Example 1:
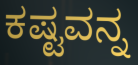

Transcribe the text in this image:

ಕಷ್ಟವನ್ನ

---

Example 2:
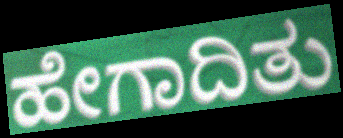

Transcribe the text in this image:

ಹೇಗಾದಿತು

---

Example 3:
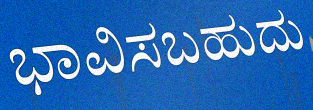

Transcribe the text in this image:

ಭಾವಿಸಬಹುದು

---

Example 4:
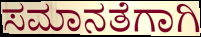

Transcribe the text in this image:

ಸಮಾನತೆಗಾಗಿ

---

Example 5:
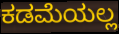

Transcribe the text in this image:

ಕಡಮೆಯಲ್ಲ